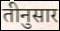
तीनुसार